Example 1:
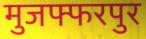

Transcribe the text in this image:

मुजफ्फरपुर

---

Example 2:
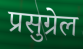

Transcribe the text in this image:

प्रसुग्रेल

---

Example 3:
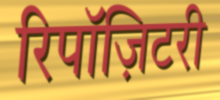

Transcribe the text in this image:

रिपॉज़िटरी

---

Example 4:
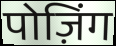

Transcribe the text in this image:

पोज़िंग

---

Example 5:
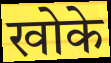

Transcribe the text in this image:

खोके